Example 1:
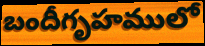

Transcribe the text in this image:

బందీగృహములో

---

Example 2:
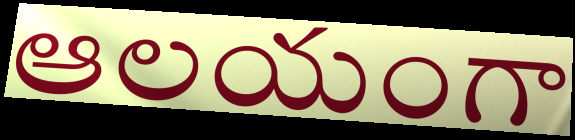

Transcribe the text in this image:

ఆలయంగా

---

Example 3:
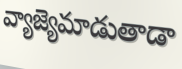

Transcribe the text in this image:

వ్యాజ్యెమాడుతాడా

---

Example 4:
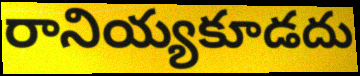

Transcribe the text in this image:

రానియ్యకూడదు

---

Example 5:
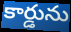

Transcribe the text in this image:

కార్డును